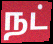
நட்